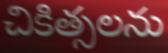
చికిత్సలను